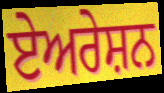
ਏਅਰੇਸ਼ਨ